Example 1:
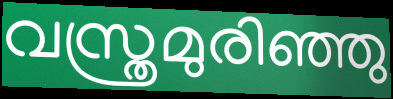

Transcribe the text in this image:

വസ്ത്രമുരിഞ്ഞു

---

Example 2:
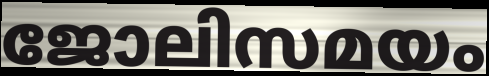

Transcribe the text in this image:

ജോലിസമയം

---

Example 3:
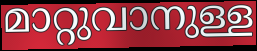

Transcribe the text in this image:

മാറ്റുവാനുള്ള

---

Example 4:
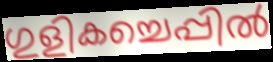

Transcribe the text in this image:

ഗുളികച്ചെപ്പിൽ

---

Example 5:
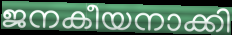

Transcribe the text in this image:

ജനകീയനാക്കി